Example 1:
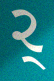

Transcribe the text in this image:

ર્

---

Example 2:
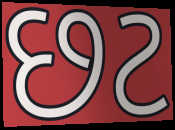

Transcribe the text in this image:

છટ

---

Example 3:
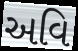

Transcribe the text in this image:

અવિ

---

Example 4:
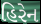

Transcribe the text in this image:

હિરેન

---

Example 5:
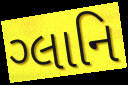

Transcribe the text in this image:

ગ્લાનિ